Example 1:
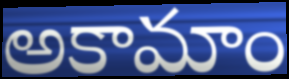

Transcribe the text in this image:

అకామాం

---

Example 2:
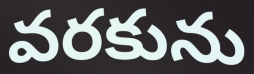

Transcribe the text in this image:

వరకును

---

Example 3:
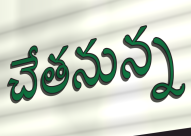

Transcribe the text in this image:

చేతనున్న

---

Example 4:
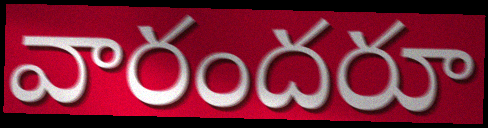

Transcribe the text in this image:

వారందరూ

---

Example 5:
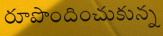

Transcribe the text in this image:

రూపొందించుకున్న